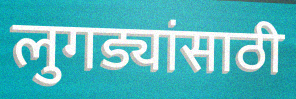
लुगड्यांसाठी